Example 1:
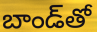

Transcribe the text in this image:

బాండ్‌తో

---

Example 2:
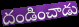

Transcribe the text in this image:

దండించాడు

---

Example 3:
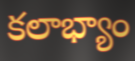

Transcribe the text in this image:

కలాభ్యాం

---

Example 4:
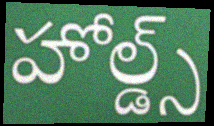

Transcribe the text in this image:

హోల్డ్స్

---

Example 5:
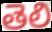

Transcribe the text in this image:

తెలి